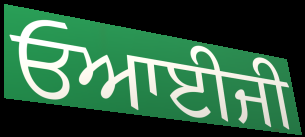
ਓਆਈਜੀ